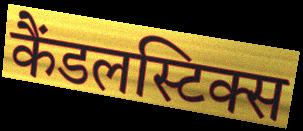
कैंडलस्टिक्स